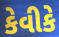
કેવીકે